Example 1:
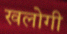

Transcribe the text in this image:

खलोगी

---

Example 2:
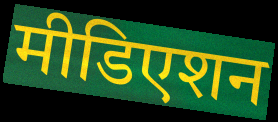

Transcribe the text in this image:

मीडिएशन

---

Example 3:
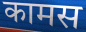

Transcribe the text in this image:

कामस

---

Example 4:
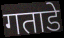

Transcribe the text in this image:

गताडे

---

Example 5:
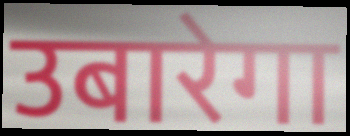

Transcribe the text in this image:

उबारेगा